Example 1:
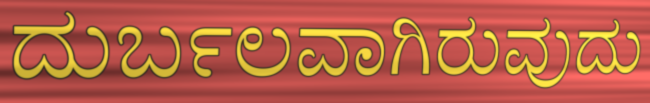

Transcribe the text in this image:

ದುರ್ಬಲವಾಗಿರುವುದು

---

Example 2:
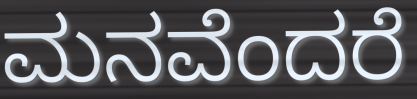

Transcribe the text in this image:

ಮನವೆಂದರೆ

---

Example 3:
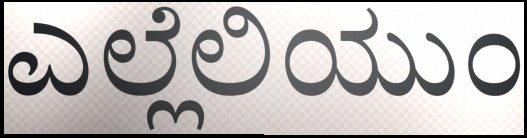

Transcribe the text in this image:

ಎಲ್ಲೆಲಿಯುಂ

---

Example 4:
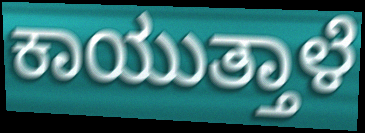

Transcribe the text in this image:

ಕಾಯುತ್ತಾಳೆ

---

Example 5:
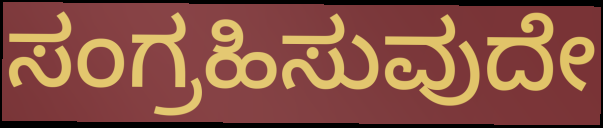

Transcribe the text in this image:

ಸಂಗ್ರಹಿಸುವುದೇ